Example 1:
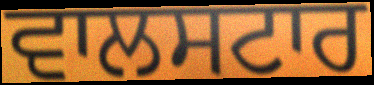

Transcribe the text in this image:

ਵਾਲਸਟਾਰ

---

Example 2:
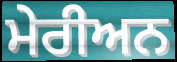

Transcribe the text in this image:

ਮੇਰੀਅਨ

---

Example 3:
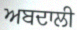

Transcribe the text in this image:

ਅਬਦਾਲੀ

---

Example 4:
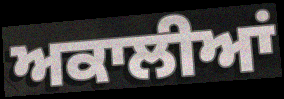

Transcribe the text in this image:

ਅਕਾਲੀਆਂ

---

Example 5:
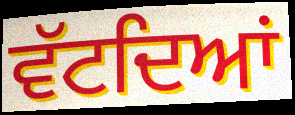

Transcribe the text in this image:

ਵੱਟਦਿਆਂ